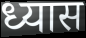
ध्यास